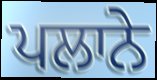
ਪਲਾਨੇ